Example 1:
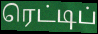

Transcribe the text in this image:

ரெட்டிப்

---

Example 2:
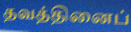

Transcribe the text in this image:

தவத்தினைப்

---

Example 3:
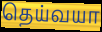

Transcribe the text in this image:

தெய்வயா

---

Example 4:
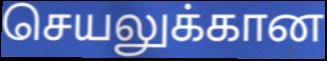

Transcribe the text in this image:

செயலுக்கான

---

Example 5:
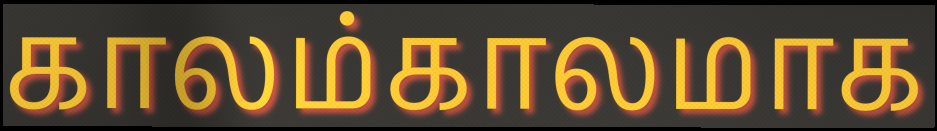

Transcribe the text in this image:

காலம்காலமாக